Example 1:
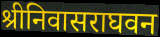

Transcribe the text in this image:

श्रीनिवासराघवन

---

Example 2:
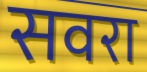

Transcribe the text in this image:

सवरा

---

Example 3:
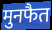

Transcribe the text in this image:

मुनफैत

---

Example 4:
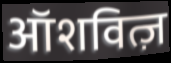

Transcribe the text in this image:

ऑशवित्ज़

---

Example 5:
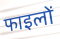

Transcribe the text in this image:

फाइलों